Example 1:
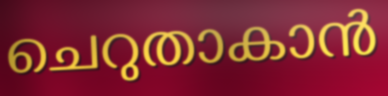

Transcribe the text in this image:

ചെറുതാകാൻ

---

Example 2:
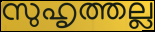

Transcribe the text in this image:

സുഹൃത്തല്ല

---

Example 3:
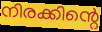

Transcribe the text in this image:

നിരക്കിന്റെ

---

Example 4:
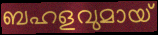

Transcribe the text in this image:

ബഹളവുമായ്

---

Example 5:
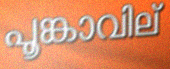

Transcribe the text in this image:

പൂങ്കാവില്